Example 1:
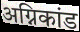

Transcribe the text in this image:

अग्निकांड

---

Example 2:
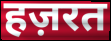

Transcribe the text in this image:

हज़रत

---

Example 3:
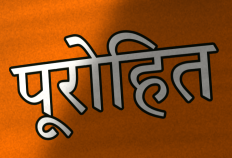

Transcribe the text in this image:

पूरोहित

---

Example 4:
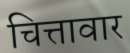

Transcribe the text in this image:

चित्तावार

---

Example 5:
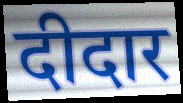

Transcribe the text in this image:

दीदार